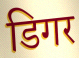
डिगर